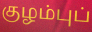
குழம்புப்